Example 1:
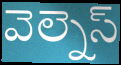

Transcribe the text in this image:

వెల్నెస్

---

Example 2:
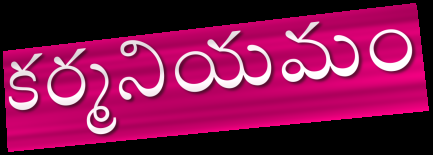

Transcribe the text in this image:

కర్మనియమం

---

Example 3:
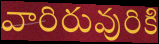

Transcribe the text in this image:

వారిరువురికి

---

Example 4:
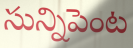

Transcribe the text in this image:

సున్నిపెంట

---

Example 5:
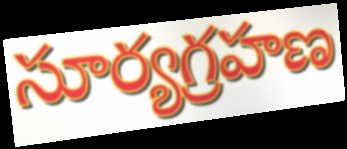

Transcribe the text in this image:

సూర్యగ్రహణ